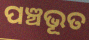
ପଞ୍ଚଭୂତ